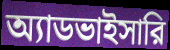
অ্যাডভাইসারি